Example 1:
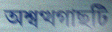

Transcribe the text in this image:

অশ্বত্থগাছটি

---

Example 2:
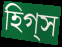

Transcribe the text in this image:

হিগ্স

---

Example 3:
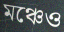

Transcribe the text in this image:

মঞ্চেও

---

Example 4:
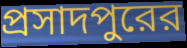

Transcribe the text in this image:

প্রসাদপুরের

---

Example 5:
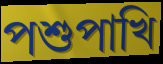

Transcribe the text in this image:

পশুপাখি